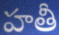
హతీ